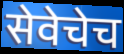
सेवेचेच